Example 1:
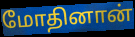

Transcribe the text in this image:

மோதினான்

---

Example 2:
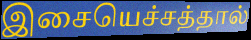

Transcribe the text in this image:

இசையெச்சத்தால்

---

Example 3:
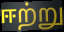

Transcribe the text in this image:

ஈற்று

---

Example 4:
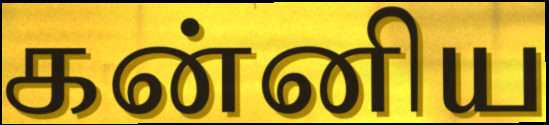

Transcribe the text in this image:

கன்னிய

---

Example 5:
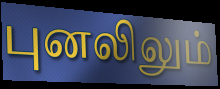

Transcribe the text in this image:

புனலிலும்